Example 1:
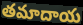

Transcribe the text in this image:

తమాదాయ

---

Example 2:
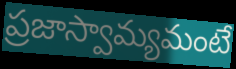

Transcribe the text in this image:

ప్రజాస్వామ్యమంటే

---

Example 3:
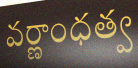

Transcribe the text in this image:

వర్ణాంధత్వ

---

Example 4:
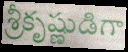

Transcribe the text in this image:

శ్రీకృష్ణుడిగా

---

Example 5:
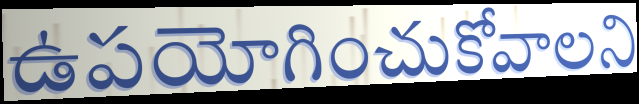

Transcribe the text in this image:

ఉపయోగించుకోవాలని